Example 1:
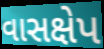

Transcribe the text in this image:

વાસક્ષેપ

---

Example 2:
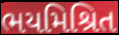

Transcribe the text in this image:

ભયમિશ્રિત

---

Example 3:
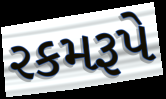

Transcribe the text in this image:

રકમરૂપે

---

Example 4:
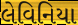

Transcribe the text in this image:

લેવિનિયા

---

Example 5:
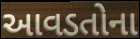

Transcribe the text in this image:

આવડતોના